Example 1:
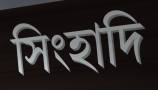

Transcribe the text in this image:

সিংহাদি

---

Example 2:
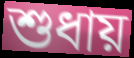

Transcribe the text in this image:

শুধায়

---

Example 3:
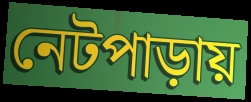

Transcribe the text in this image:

নেটপাড়ায়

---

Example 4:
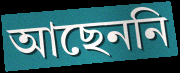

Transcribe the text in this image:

আছেননি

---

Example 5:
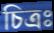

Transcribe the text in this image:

চিত্রঃ